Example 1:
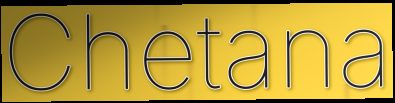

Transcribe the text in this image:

Chetana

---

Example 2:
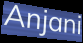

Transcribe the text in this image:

Anjani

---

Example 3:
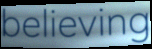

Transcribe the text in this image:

believing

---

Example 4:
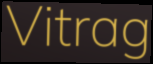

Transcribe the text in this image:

Vitrag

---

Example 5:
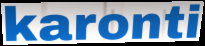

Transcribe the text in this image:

karonti